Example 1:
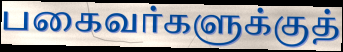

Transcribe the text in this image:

பகைவர்களுக்குத்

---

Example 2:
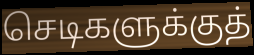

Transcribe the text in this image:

செடிகளுக்குத்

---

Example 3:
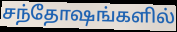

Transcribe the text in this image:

சந்தோஷங்களில்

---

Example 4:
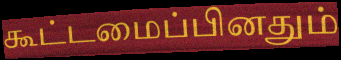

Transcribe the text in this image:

கூட்டமைப்பினதும்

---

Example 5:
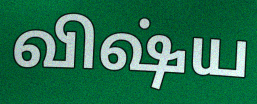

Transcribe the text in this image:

விஷ்ய